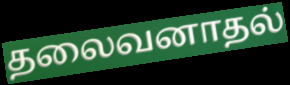
தலைவனாதல்